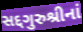
સદ્દગુરુશ્રીનાં